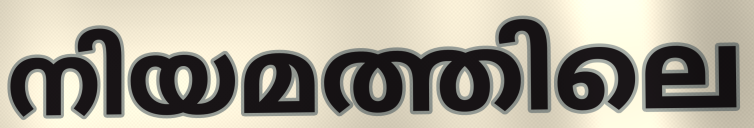
നിയമത്തിലെ